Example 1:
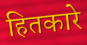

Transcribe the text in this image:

हितकारे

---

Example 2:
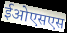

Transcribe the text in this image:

ईओएसएस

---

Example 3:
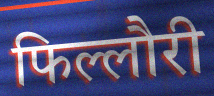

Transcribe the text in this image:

फिल्लौरी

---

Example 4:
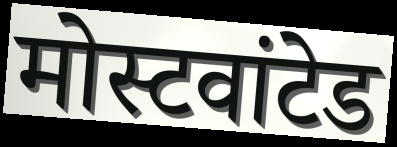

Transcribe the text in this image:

मोस्टवांटेड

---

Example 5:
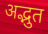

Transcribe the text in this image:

अद्भुत